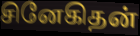
சினேகிதன்